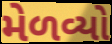
મેળવ્યો